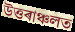
উত্তৰাঞ্চলত